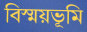
বিস্ময়ভূমি